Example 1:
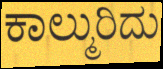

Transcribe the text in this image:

ಕಾಲ್ಮುರಿದು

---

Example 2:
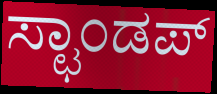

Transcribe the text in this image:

ಸ್ಟಾಂಡಪ್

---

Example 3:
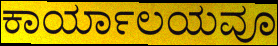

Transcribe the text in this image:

ಕಾರ್ಯಾಲಯವೂ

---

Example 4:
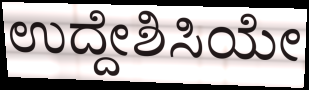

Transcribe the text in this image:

ಉದ್ದೇಶಿಸಿಯೇ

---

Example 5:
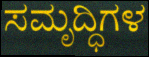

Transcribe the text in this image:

ಸಮೃದ್ಧಿಗಳ